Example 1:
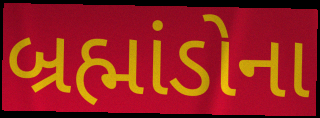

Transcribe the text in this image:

બ્રહ્માંડોના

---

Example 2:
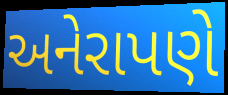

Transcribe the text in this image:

અનેરાપણે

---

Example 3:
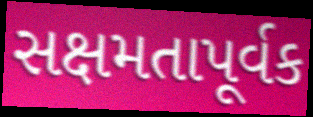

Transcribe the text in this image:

સક્ષમતાપૂર્વક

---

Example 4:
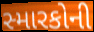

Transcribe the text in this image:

સ્મારકોની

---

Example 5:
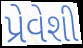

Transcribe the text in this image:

પ્રેવેશી